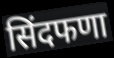
सिंदफणा